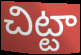
చిట్టా